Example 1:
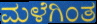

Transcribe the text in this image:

ಮಳೆಗಿಂತ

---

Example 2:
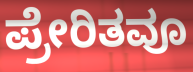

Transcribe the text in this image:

ಪ್ರೇರಿತವೂ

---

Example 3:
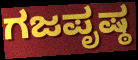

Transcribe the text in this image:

ಗಜಪೃಷ್ಠ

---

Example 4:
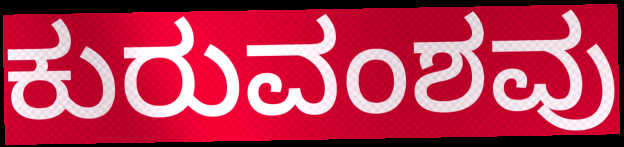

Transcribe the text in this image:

ಕುರುವಂಶವು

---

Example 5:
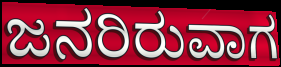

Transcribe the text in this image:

ಜನರಿರುವಾಗ